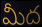
మీద